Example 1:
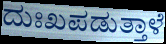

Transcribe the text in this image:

ದುಃಖಪಡುತ್ತಾಳೆ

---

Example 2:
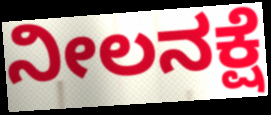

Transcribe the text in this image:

ನೀಲನಕ್ಷೆ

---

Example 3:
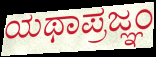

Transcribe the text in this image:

ಯಥಾಪ್ರಜ್ಞಂ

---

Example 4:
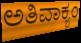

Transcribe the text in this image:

ಅತಿವಾಕ್ಯಂ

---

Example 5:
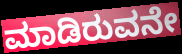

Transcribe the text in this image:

ಮಾಡಿರುವನೇ